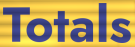
Totals